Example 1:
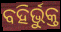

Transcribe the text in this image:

ବହିର୍ଭୁକ୍ତ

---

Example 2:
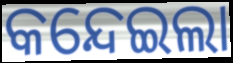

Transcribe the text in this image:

କନ୍ଦେଇଲା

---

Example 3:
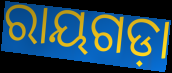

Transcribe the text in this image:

ରାୟଗଡ଼ା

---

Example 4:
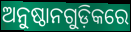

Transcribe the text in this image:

ଅନୁଷ୍ଠାନଗୁଡ଼ିକରେ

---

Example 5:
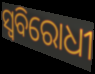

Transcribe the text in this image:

ସ୍ୱବିରୋଧୀ